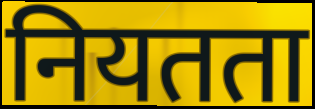
नियतता